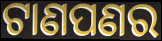
ଟାଣପଣର